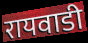
रायवाडी